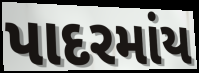
પાદરમાંય